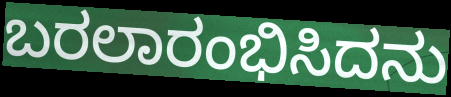
ಬರಲಾರಂಭಿಸಿದನು